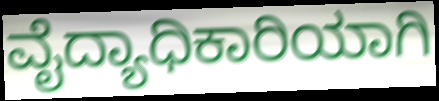
ವೈದ್ಯಾಧಿಕಾರಿಯಾಗಿ